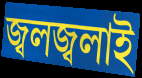
জ্বলজ্বলাই